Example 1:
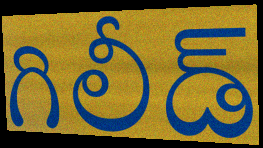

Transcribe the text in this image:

గిలీడ్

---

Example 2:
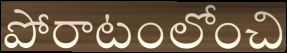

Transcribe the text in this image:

పోరాటంలోంచి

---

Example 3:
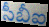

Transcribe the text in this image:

సీబీఐ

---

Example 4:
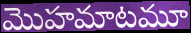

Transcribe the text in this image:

మొహమాటమూ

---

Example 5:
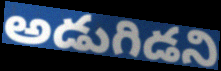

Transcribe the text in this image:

అడుగిడని